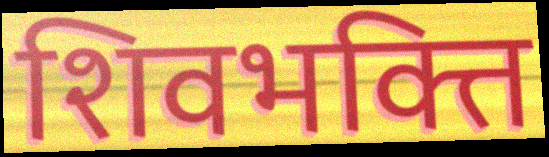
शिवभक्ति